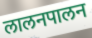
लालनपालन